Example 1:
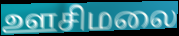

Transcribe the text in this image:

ஊசிமலை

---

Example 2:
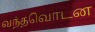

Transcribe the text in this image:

வந்தவொடன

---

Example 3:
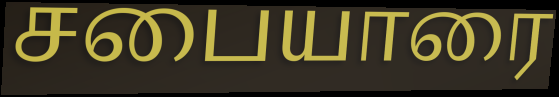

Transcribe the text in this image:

சபையாரை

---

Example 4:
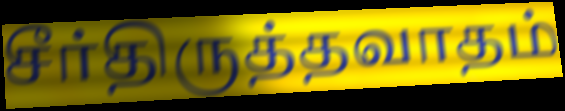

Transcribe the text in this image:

சீர்திருத்தவாதம்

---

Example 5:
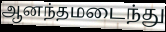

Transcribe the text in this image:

ஆனந்தமடைந்து